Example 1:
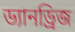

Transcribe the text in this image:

ড্যানড্রিজ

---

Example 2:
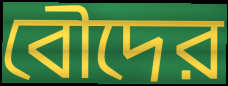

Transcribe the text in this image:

বৌদের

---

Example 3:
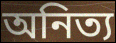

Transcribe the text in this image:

অনিত্য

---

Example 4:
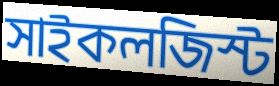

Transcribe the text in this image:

সাইকলজিস্ট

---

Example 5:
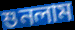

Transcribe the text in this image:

শুনলাম